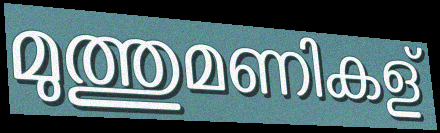
മുത്തുമണികള്